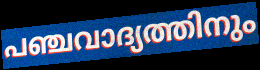
പഞ്ചവാദ്യത്തിനും